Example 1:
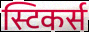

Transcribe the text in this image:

स्टिकर्स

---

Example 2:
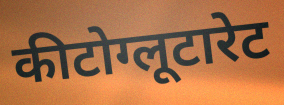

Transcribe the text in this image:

कीटोग्लूटारेट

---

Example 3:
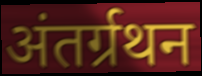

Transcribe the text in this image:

अंतर्ग्रथन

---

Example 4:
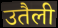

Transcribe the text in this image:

उतैली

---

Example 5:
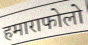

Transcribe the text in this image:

हमाराफोलो